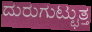
ದುರುಗುಟ್ಟುತ್ತ